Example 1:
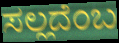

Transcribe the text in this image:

ಸಲ್ಲದೆಂಬ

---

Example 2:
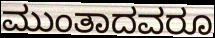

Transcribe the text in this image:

ಮುಂತಾದವರೂ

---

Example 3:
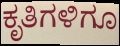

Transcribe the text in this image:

ಕೃತಿಗಳಿಗೂ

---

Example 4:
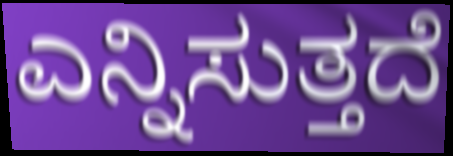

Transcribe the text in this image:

ಎನ್ನಿಸುತ್ತದೆ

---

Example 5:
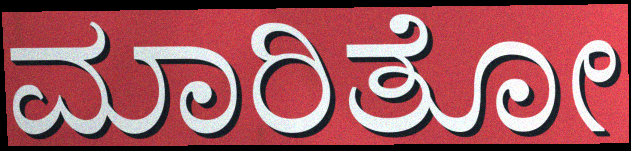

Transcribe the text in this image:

ಮಾರಿತೋ